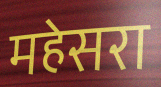
महेसरा